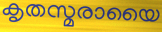
കൃതസ്മരായൈ